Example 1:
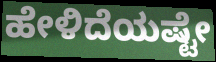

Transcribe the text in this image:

ಹೇಳಿದೆಯಷ್ಟೇ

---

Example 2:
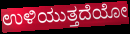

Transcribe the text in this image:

ಉಳಿಯುತ್ತದೆಯೋ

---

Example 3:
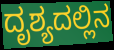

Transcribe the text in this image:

ದೃಶ್ಯದಲ್ಲಿನ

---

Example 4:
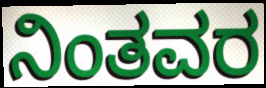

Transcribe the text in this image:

ನಿಂತವರ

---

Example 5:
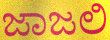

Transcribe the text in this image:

ಜಾಜಲಿ